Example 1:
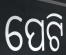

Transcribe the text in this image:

ପେଟି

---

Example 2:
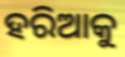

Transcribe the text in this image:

ହରିଆକୁ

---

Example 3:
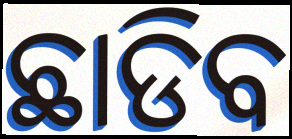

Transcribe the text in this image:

ଛାଡିବ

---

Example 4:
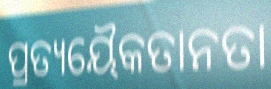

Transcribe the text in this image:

ପ୍ରତ୍ୟୟୈକତାନତା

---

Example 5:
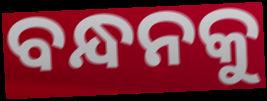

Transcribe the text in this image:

ବନ୍ଧନକୁ